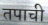
तपाची